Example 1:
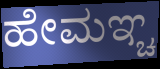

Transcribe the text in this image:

ಹೇಮಞ್ಚ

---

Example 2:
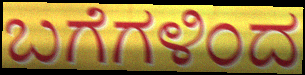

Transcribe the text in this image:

ಬಗೆಗಳಿಂದ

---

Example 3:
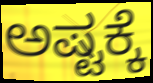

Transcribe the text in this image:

ಅಷ್ಟಕ್ಕೆ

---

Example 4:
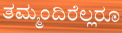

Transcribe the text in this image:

ತಮ್ಮಂದಿರೆಲ್ಲರೂ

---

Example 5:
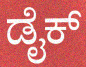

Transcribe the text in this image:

ಡೈಕ್